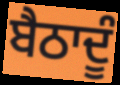
ਬੈਠਾਦੂੰ